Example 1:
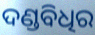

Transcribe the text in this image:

ଦଣ୍ଡବିଧିର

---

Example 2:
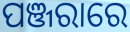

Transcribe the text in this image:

ପଞ୍ଜରାରେ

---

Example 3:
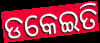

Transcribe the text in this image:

ଡକେଇତି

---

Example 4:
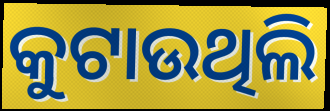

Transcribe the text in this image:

କୁଟାଉଥିଲି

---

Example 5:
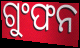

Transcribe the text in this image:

ଗୁଂଫନ